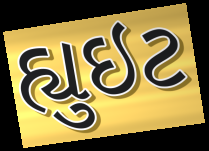
હ્યુઇટ